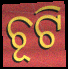
ଚୂଟି